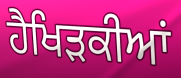
ਹੈਖਿੜਕੀਆਂ